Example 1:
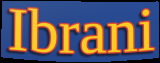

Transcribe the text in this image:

Ibrani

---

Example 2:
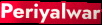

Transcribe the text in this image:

Periyalwar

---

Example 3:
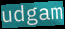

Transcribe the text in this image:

udgam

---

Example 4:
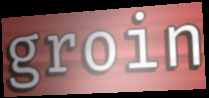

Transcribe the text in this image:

groin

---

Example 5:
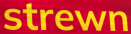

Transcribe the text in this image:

strewn